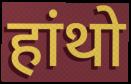
हांथो